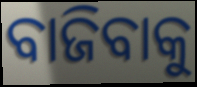
ବାଜିବାକୁ